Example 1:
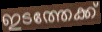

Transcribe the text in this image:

ഇടത്തേക്ക്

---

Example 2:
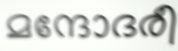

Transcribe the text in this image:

മന്ദോദരീ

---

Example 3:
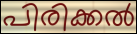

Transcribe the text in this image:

പിരിക്കൽ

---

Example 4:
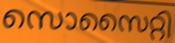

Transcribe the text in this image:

സൊസൈറ്റി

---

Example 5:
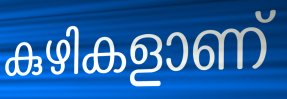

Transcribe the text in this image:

കുഴികളാണ്